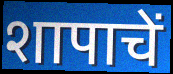
शापाचें